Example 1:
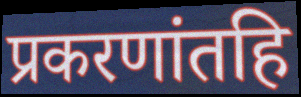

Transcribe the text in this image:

प्रकरणांतहि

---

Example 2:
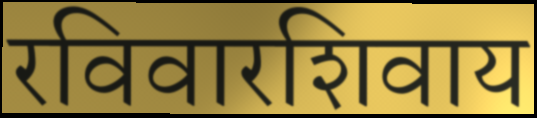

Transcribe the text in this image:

रविवारशिवाय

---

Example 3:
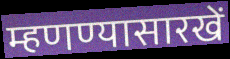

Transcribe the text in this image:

म्हणण्यासारखें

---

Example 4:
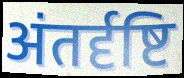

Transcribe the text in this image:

अंतर्दृष्टि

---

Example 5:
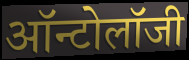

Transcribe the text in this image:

ऑन्टोलॉजी